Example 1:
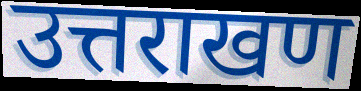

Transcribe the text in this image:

उत्तराखण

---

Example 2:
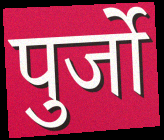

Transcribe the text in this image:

पुर्जो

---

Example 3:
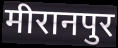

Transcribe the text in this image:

मीरानपुर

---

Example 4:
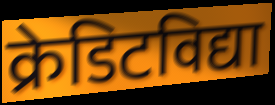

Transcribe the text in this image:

क्रेडिटविद्या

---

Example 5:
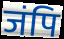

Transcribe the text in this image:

जंपि